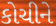
કોચીને